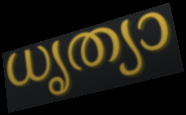
ധൃത്യാ